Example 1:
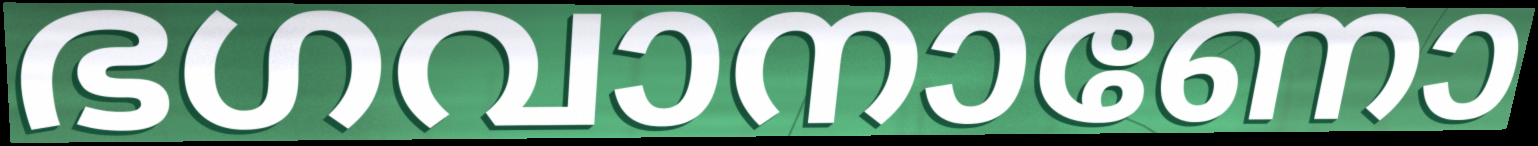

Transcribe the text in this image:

ഭഗവാനാണോ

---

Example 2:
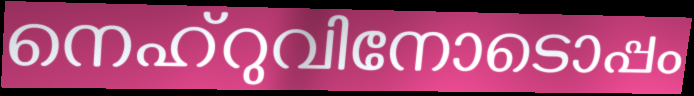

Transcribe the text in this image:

നെഹ്റുവിനോടൊപ്പം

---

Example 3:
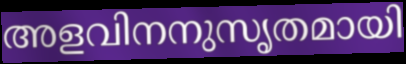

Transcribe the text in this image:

അളവിനനുസൃതമായി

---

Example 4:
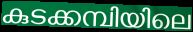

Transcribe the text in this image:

കുടക്കമ്പിയിലെ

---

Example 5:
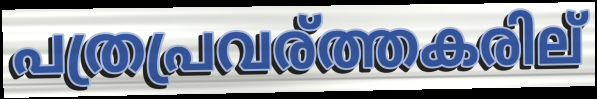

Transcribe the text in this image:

പത്രപ്രവര്ത്തകരില്